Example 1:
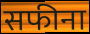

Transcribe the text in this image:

सफीना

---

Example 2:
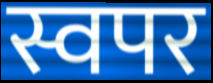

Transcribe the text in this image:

स्वपर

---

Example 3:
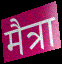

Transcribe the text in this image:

मैत्रा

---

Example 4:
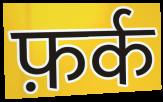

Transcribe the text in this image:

फ़र्क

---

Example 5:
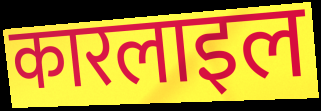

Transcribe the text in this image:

कारलाइल